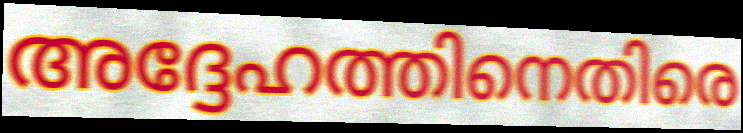
അദ്ദേഹത്തിനെതിരെ